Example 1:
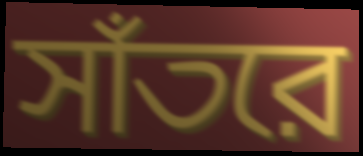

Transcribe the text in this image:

সাঁতরে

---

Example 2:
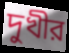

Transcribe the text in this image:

দুখীর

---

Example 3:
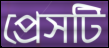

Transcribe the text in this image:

প্রেসটি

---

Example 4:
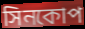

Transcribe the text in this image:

সিনকোপ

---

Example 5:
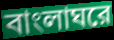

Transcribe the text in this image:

বাংলাঘরে